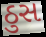
ઠુસ